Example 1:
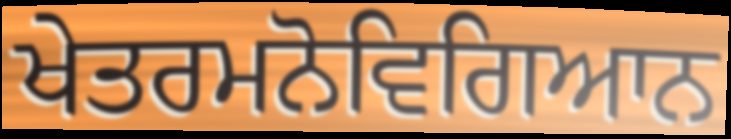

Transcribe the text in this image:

ਖੇਤਰਮਨੋਵਿਗਿਆਨ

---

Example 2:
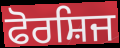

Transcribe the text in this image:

ਫੋਰਸ਼ਿਜ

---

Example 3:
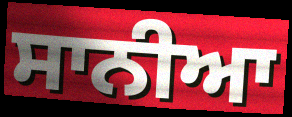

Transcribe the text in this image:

ਸਾਨੀਆ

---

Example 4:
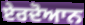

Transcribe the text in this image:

ਏਰਦੋਆਨ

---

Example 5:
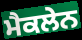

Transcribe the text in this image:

ਮੈਕਲੇਨ